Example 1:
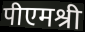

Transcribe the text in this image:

पीएमश्री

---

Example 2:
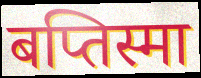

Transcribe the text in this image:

बप्तिस्मा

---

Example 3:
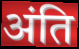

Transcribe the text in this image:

अंति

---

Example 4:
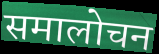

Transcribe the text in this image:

समालोचन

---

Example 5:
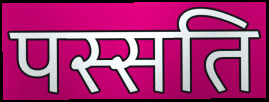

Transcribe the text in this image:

पस्सति